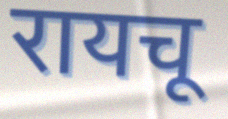
रायचू